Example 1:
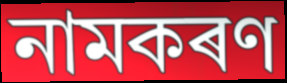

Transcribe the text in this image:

নামকৰণ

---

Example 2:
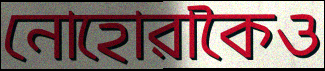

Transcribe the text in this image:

নোহোৱাকৈও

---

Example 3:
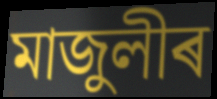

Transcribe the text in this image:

মাজুলীৰ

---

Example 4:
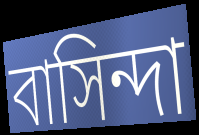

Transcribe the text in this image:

বাসিন্দা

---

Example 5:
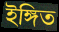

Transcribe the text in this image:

ইঙ্গিত